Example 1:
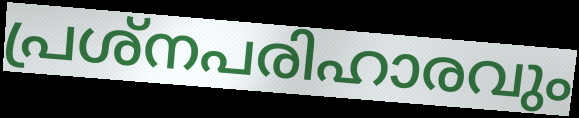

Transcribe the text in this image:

പ്രശ്നപരിഹാരവും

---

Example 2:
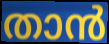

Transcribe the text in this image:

താൻ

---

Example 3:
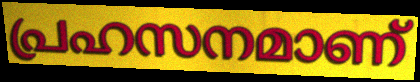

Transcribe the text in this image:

പ്രഹസനമാണ്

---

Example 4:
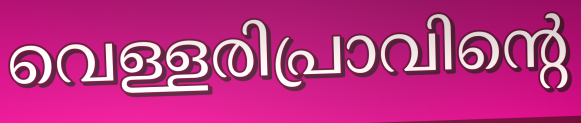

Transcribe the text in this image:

വെള്ളരിപ്രാവിന്റെ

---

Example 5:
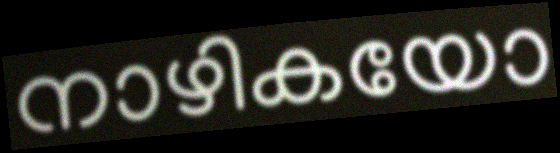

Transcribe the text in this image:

നാഴികയോ